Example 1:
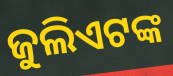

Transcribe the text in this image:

ଜୁଲିଏଟଙ୍କ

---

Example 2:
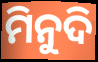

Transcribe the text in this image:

ମିନୁଦି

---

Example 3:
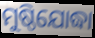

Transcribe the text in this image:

ମୁଷ୍ଠିଯୋଦ୍ଧା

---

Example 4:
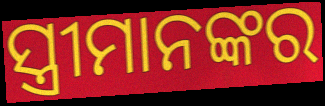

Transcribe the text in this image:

ସ୍ତ୍ରୀମାନଙ୍କର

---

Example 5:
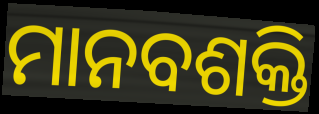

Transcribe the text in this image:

ମାନବଶକ୍ତି